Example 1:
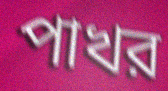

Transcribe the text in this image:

পাখর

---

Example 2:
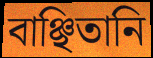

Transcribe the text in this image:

বাঞ্ছিতানি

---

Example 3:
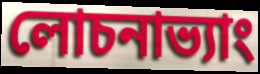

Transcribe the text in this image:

লোচনাভ্যাং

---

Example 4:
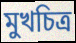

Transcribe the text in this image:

মুখচিত্র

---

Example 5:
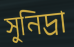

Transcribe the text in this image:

সুনিদ্রা